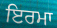
ਇਰਮਾ